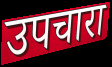
उपचारा